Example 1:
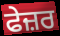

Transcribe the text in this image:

ਫੇਜ਼ਰ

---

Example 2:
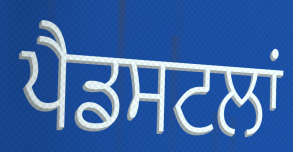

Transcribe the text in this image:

ਪੈਡਸਟਲਾਂ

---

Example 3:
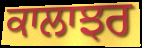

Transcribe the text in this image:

ਕਾਲਾਝਰ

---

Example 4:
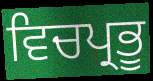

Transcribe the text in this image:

ਵਿਚਪ੍ਰਭੂ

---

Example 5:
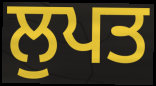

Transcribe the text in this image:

ਲੁਪਤ